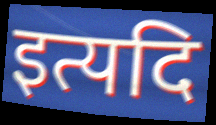
इत्यदि